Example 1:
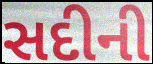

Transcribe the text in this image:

સદીની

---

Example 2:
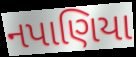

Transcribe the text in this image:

નપાણિયા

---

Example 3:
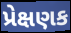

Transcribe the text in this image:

પ્રેક્ષણક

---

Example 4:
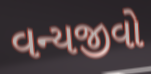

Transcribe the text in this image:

વન્યજીવો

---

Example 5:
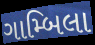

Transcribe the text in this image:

ગામ્બિલા